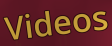
Videos